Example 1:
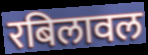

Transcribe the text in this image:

रबिलावल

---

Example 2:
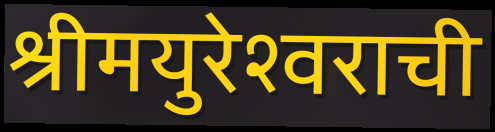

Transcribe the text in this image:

श्रीमयुरेश्वराची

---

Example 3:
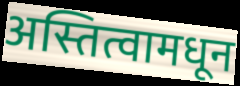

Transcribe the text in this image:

अस्तित्वामधून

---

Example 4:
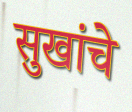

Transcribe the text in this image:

सुखांचे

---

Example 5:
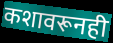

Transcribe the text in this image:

कशावरूनही